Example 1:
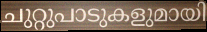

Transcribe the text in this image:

ചുറ്റുപാടുകളുമായി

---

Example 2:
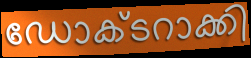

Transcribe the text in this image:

ഡോക്ടറാക്കി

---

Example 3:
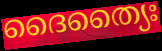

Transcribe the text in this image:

ദൈത്യൈഃ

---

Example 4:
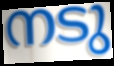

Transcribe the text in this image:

നടു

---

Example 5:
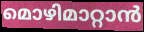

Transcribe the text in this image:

മൊഴിമാറ്റാൻ